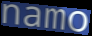
namo